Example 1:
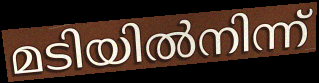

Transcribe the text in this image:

മടിയിൽനിന്ന്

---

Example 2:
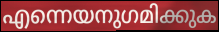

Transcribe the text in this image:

എന്നെയനുഗമിക്കുക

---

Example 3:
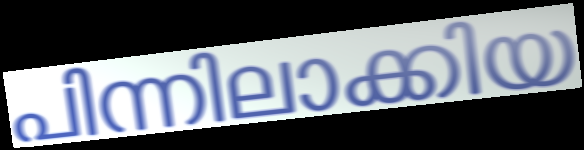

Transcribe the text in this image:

പിന്നിലാക്കിയ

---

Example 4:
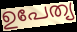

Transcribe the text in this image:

ഉപേത്യ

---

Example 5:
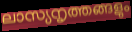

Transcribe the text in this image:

ലാസ്യനൃത്തങ്ങളും